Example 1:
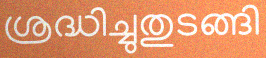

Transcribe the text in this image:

ശ്രദ്ധിച്ചുതുടങ്ങി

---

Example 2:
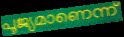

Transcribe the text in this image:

പൂജ്യമാണെന്ന്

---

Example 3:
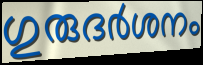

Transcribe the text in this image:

ഗുരുദർശനം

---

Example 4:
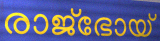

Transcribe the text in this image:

രാജ്ഭോയ്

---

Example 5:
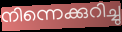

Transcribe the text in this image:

നിന്നെക്കുറിച്ചു